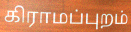
கிராமப்புறம்